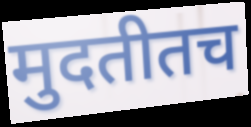
मुदतीतच